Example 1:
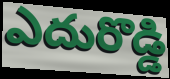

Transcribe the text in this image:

ఎదురొడ్డి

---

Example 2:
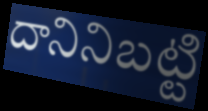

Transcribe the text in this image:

దానినిబట్టి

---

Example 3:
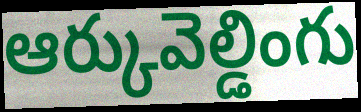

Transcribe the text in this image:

ఆర్కువెల్డింగు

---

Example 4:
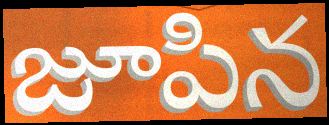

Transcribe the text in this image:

జూపిన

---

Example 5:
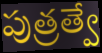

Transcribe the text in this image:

పుత్రత్వే